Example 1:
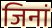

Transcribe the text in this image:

जिनां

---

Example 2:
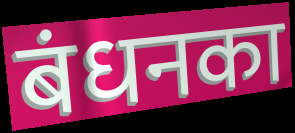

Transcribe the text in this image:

बंधनका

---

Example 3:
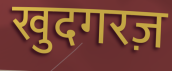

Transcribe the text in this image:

खुदगरज़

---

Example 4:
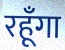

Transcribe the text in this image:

रहूँगा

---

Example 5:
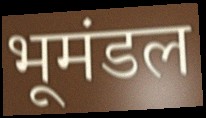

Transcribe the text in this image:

भूमंडल